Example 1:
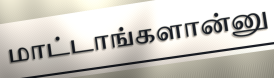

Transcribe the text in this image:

மாட்டாங்களான்னு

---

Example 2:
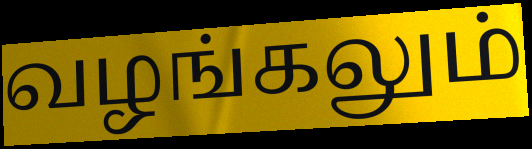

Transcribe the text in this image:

வழங்கலும்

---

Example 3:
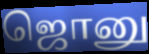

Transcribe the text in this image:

ஜொனு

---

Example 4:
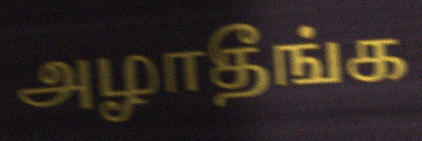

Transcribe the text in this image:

அழாதீங்க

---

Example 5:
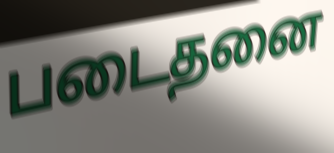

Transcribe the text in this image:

படைதனை